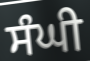
ਸੰਘੀ